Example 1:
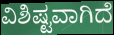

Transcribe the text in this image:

ವಿಶಿಷ್ಟವಾಗಿದೆ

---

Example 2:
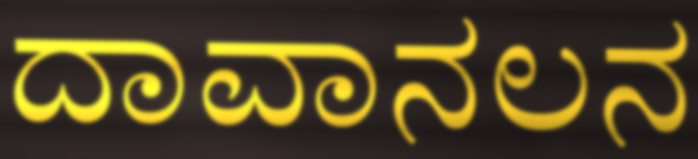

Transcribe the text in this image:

ದಾವಾನಲನ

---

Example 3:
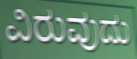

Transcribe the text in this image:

ವಿರುವುದು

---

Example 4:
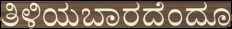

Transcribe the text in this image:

ತಿಳಿಯಬಾರದೆಂದೂ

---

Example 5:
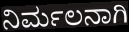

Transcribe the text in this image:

ನಿರ್ಮಲನಾಗಿ